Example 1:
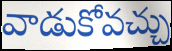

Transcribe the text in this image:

వాడుకోవచ్చు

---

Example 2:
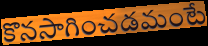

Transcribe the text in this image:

కొనసాగించడమంటే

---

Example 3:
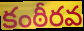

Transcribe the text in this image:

కంఠీరవ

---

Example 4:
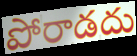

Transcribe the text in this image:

పోరాడదు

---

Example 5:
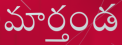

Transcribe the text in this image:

మార్తండ